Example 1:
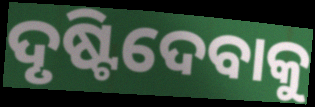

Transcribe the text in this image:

ଦୃଷ୍ଟିଦେବାକୁ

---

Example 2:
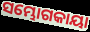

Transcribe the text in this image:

ସମ୍ଭୋଗକାୟା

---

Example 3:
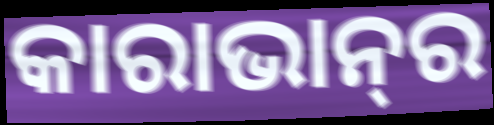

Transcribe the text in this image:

କାରାଭାନ୍‍ର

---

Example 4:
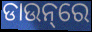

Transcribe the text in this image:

ଡାଉନ୍‌ରେ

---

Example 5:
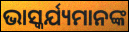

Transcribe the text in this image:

ଭାସ୍କର୍ଯ୍ୟମାନଙ୍କ